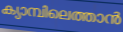
ക്യാമ്പിലെത്താൻ